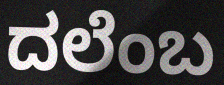
ದಲೆಂಬ